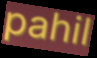
pahil